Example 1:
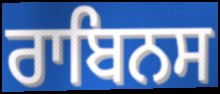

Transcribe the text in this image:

ਰਾਬਿਨਸ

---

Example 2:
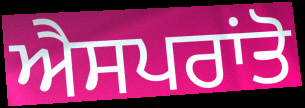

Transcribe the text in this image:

ਐਸਪਰਾਂਤੋ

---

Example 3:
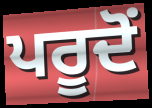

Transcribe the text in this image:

ਪਰੂਦੋਂ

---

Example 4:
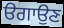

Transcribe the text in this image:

ੳਗਾਉਣ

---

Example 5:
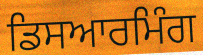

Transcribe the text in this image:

ਡਿਸਆਰਮਿੰਗ